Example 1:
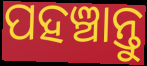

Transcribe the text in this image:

ପହଞ୍ଚାନ୍ତୁ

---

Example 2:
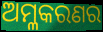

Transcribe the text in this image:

ଅମ୍ଳକରଣର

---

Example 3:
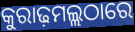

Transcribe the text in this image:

କୁରାଢ଼ମଲ୍ଲଠାରେ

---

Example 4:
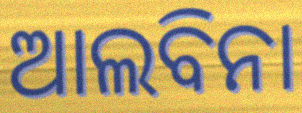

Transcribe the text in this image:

ଆଲବିନା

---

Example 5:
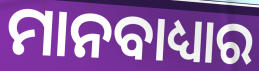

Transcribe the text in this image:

ମାନବାଧ୍ୟାର